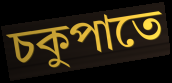
চকুপাতে